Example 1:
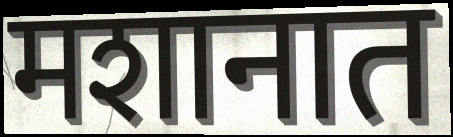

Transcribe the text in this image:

मशानात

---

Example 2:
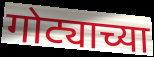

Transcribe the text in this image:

गोट्याच्या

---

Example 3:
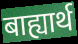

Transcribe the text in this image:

बाह्यार्थ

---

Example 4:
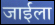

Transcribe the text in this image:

जाईला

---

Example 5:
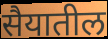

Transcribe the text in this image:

सैयातील